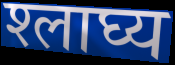
श्लाघ्य